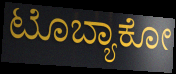
ಟೊಬ್ಯಾಕೋ